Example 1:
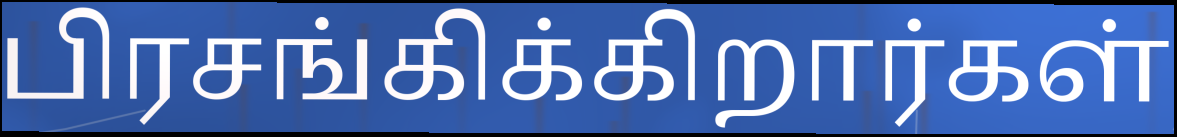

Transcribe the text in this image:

பிரசங்கிக்கிறார்கள்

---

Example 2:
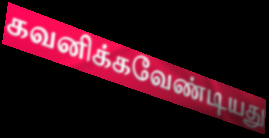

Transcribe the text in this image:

கவனிக்கவேண்டியது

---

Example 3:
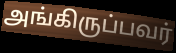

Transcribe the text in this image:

அங்கிருப்பவர்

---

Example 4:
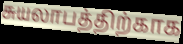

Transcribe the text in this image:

சுயலாபத்திற்காக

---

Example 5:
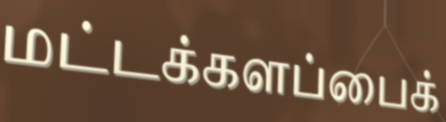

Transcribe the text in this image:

மட்டக்களப்பைக்